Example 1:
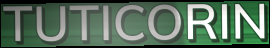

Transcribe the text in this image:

TUTICORIN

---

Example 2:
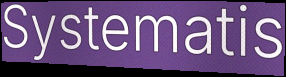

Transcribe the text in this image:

Systematis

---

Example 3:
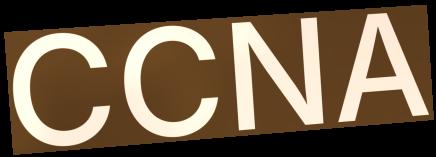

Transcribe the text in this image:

CCNA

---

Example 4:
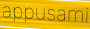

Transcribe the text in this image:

appusami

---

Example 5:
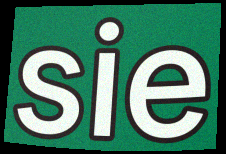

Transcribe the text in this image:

sie